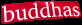
buddhas